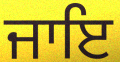
ਜਾਇ